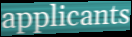
applicants